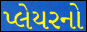
પ્લેયરનો